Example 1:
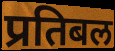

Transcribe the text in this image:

प्रतिबल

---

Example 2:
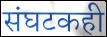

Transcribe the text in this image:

संघटकही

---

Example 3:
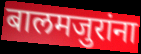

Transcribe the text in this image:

बालमजुरांना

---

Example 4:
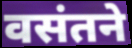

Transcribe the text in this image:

वसंतने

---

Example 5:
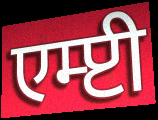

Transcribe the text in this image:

एम्प्टी